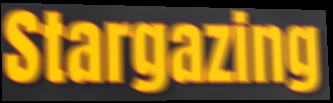
Stargazing